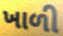
ખાળી